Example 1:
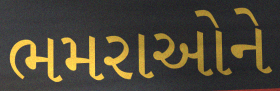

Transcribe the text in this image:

ભમરાઓને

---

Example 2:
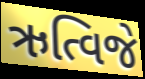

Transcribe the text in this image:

ઋત્વિજે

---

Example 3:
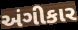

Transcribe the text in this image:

અંગીકાર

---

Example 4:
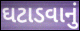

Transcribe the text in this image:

ઘટાડવાનું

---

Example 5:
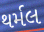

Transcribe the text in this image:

થર્મલ